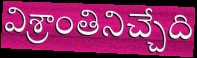
విశ్రాంతినిచ్చేది